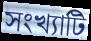
সংখ্যাটি